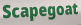
Scapegoat